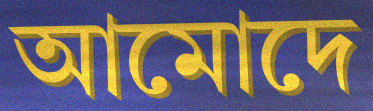
আমোদে